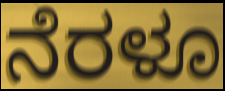
ನೆರಳೂ